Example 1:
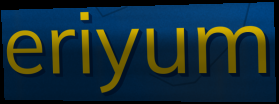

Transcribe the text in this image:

eriyum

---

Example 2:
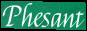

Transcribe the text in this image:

Phesant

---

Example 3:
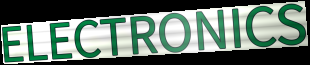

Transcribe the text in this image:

ELECTRONICS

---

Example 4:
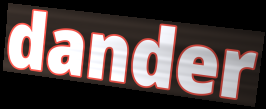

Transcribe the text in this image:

dander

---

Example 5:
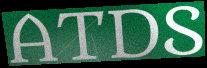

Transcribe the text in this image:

ATDS